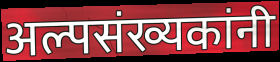
अल्पसंख्यकांनी